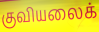
குவியலைக்